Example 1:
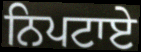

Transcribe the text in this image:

ਨਿਪਟਾਏ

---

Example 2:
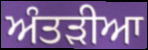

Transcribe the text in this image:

ਅੰਤੜੀਆ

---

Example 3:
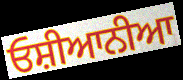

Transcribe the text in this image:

ਓਸ਼ੀਆਨੀਆ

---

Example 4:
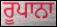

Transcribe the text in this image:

ਰੂਪਾਨਾ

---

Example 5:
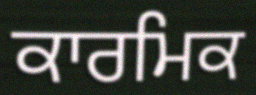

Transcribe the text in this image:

ਕਾਰਮਿਕ